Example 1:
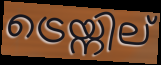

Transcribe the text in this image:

ട്രെയ്നില്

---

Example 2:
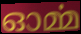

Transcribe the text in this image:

ഓൎമ്മ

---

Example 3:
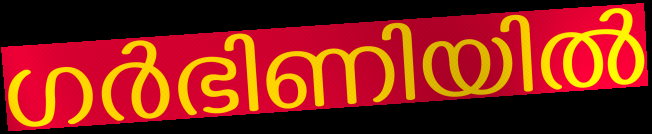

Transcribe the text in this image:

ഗർഭിണിയിൽ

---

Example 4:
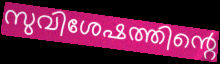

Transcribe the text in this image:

സുവിശേഷത്തിന്റെ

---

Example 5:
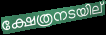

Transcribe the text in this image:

ക്ഷേത്രനടയില്